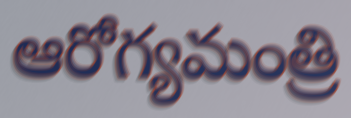
ఆరోగ్యమంత్రి